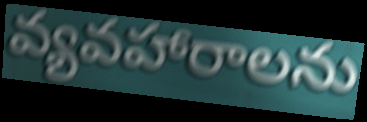
వ్యవహారాలను